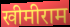
खीमीराम